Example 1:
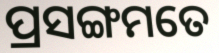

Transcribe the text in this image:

ପ୍ରସଙ୍ଗମତେ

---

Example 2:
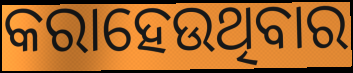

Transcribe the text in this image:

କରାହେଉଥିବାର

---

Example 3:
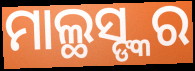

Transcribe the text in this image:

ମାଲ୍ଥସ୍ଙ୍କର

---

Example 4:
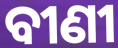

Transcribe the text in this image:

ବୀଣୀ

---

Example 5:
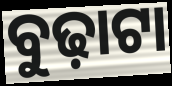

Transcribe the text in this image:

ବୁଢ଼ାଟା